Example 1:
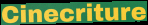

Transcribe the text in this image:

Cinecriture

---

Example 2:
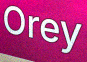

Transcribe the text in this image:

Orey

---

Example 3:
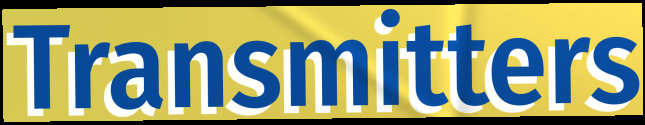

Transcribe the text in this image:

Transmitters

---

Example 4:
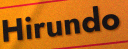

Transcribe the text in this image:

Hirundo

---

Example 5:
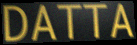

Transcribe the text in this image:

DATTA